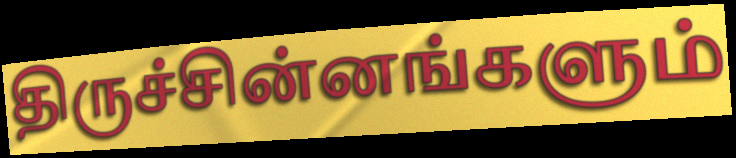
திருச்சின்னங்களும்